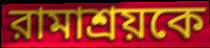
রামাশ্রয়কে